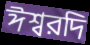
ঈশ্বরদি